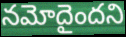
నమోదైందని